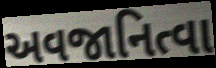
અવજાનિત્વા